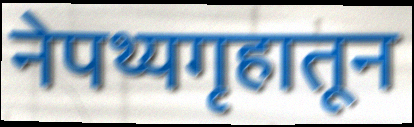
नेपथ्यगृहातून